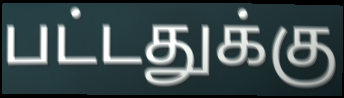
பட்டதுக்கு